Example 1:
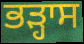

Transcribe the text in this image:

ਭੜ੍ਹਾਸ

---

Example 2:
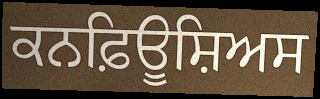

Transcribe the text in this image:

ਕਨਫ਼ਿਊਸ਼ਿਅਸ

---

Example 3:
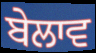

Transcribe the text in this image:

ਬੇਲਾਵ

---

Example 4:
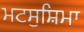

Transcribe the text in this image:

ਮਟਸੁਸ਼ਿਮਾ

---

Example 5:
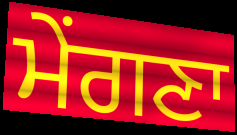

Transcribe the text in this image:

ਮੇਂਗਣਾ